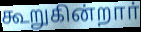
கூறுகின்றார்